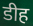
डीह